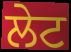
ਲੇਟ